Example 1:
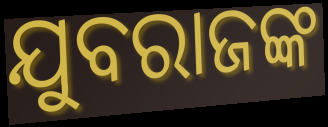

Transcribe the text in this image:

ଯୁବରାଜଙ୍କ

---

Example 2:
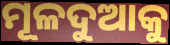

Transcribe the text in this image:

ମୂଳଦୁଆକୁ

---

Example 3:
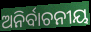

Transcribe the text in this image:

ଅନିର୍ବାଚନୀୟ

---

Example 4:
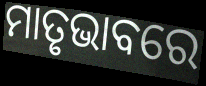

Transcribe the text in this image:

ମାତୃଭାବରେ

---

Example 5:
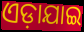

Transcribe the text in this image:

ଏଡ଼ାଯାଇ